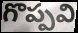
గొప్పవి